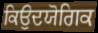
ਕਿਉਦਯੋਗਿਕ